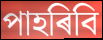
পাহৰিবি